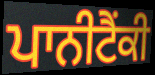
ਪਾਨੀਟੈਂਕੀ